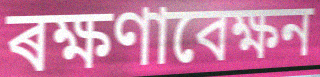
ৰক্ষণাবেক্ষন